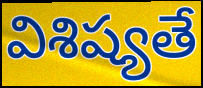
విశిష్యతే